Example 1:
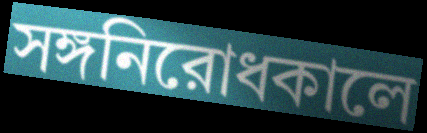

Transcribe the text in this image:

সঙ্গনিরোধকালে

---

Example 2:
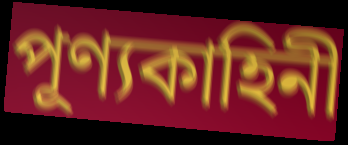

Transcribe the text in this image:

পূণ্যকাহিনী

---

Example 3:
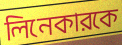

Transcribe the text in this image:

লিনেকারকে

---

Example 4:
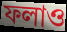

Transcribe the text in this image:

ফলাও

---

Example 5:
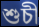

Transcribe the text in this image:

শুচী